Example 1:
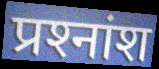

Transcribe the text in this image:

प्रश्‍नांश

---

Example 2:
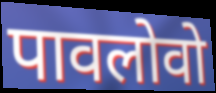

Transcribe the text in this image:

पावलोवो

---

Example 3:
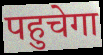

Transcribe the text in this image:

पहुचेगा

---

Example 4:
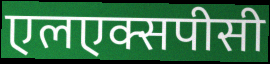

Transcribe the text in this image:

एलएक्सपीसी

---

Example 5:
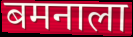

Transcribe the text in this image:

बमनाला